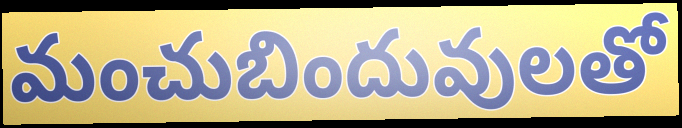
మంచుబిందువులతో